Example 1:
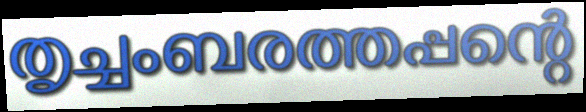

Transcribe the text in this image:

തൃച്ചംബരത്തപ്പന്റെ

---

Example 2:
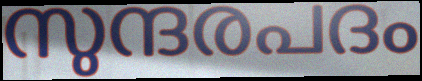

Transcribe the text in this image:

സുന്ദരപദം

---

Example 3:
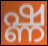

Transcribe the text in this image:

ഷ്ണ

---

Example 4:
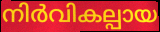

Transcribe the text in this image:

നിർവികല്പായ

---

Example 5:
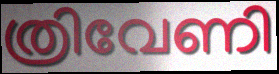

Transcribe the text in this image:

ത്രിവേണി